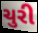
ચુરી